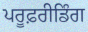
ਪਰੂਫ਼ਰੀਡਿੰਗ